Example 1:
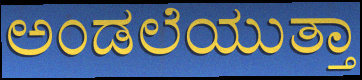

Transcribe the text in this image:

ಅಂಡಲೆಯುತ್ತಾ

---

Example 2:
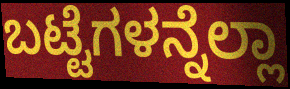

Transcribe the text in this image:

ಬಟ್ಟೆಗಳನ್ನೆಲ್ಲಾ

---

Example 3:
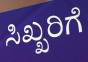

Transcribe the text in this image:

ಸಿಖ್ಖರಿಗೆ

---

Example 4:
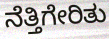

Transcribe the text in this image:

ನೆತ್ತಿಗೇರಿತು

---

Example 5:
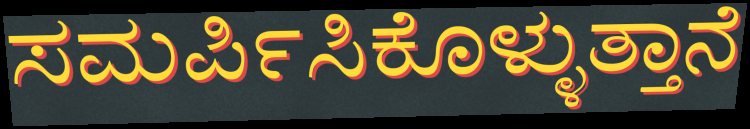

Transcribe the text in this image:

ಸಮರ್ಪಿಸಿಕೊಳ್ಳುತ್ತಾನೆ